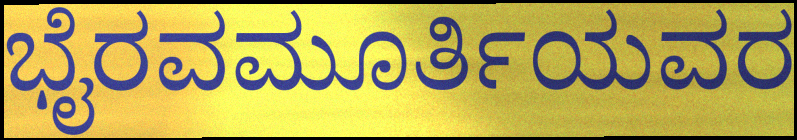
ಭೈರವಮೂರ್ತಿಯವರ